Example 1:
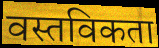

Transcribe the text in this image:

वस्तविकता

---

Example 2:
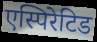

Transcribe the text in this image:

एस्पिरेटिड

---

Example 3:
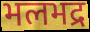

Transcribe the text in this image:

भलभद्र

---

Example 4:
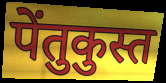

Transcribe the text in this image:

पेंतुकुस्त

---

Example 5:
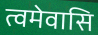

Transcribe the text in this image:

त्वमेवासि